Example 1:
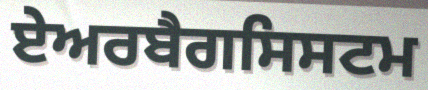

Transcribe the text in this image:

ਏਅਰਬੈਗਸਿਸਟਮ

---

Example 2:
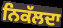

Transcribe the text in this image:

ਨਿਕੱਲਦਾ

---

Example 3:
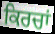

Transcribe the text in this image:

ਕਿਰਚਾਂ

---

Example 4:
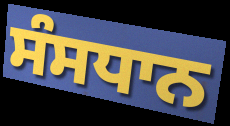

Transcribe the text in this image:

ਸੰਸਧਾਨ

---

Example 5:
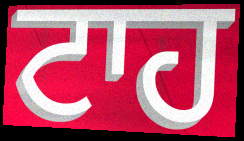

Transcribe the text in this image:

ਟਾਹ